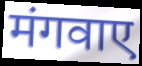
मंगवाए